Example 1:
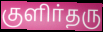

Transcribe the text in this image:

குளிர்தரு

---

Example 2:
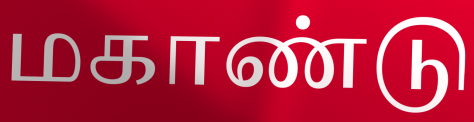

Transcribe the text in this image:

மகாண்டு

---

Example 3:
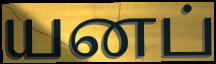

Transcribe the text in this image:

யனப்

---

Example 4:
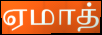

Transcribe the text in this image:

ஏமாத்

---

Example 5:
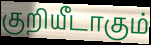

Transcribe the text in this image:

குறியீடாகும்